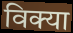
विक्या